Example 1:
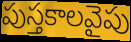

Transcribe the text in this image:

పుస్తకాలవైపు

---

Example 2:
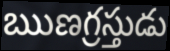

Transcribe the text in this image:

ఋణగ్రస్తుడు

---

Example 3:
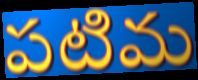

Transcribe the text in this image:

పటిమ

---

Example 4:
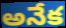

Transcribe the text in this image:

అనేక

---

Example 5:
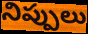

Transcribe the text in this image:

నిప్పులు